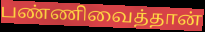
பண்ணிவைத்தான்